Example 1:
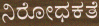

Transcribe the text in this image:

ನಿರೋಧಕತೆ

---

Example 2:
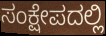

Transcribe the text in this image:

ಸಂಕ್ಷೇಪದಲ್ಲಿ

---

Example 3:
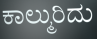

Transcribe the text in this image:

ಕಾಲ್ಮುರಿದು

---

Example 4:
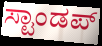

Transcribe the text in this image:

ಸ್ಟಾಂಡಪ್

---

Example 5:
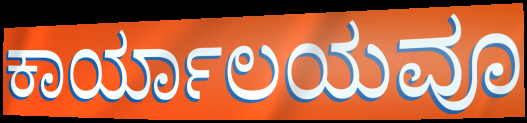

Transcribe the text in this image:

ಕಾರ್ಯಾಲಯವೂ